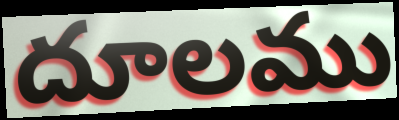
దూలము